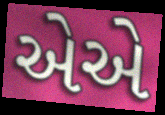
એએ